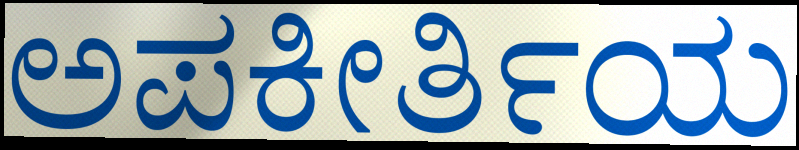
ಅಪಕೀರ್ತಿಯ